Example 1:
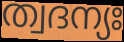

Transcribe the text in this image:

ത്വദന്യഃ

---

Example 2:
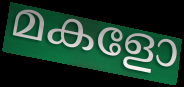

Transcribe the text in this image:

മകളോ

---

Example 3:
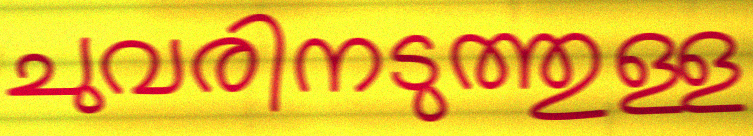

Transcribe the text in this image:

ചുവരിനടുത്തുള്ള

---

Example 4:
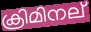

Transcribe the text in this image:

ക്രിമിനല്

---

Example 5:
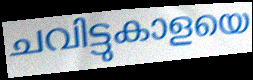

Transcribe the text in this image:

ചവിട്ടുകാളയെ